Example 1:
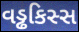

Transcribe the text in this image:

વડ્ઢકિસ્સ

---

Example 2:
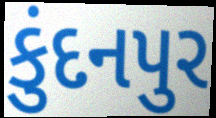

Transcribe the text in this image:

કુંદનપુર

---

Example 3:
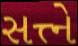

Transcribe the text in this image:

સત્ત્ને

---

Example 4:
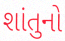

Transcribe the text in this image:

શાંતુનો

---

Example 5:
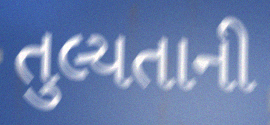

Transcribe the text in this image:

તુલ્યતાની